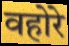
वहोरे